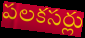
పలకసర్లు